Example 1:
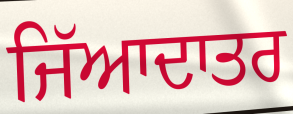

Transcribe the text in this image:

ਜਿੱਆਦਾਤਰ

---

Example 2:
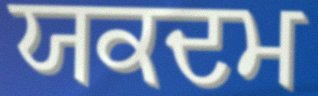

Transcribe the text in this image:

ਯਕਦਮ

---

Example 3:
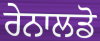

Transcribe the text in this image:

ਰੇਨਾਲਡੋ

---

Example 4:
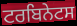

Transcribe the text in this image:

ਟਰਬਿਨੇਟਸ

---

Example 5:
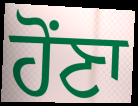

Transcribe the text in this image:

ਹੋਂਣਾ